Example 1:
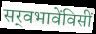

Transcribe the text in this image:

सर्वभावेंविसीं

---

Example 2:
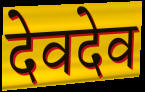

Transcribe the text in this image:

देवदेव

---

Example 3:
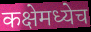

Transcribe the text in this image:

कक्षेमध्येच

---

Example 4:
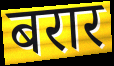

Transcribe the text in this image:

बरार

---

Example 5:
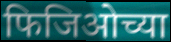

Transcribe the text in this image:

फिजिओच्या